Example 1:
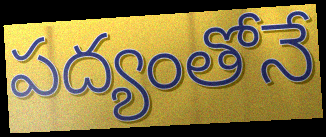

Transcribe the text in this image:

పద్యంతోనే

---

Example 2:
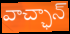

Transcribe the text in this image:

వాచ్ఛాన్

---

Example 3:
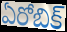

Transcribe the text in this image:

ఏరోబిక్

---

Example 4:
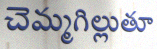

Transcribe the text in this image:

చెమ్మగిల్లుతూ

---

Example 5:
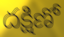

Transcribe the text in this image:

దక్షిణో